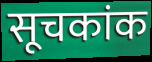
सूचकांक